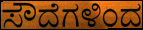
ಸೌದೆಗಳಿಂದ